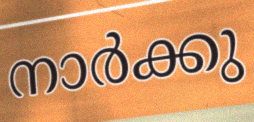
നാർക്കു